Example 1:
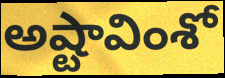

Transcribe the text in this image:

అష్టావింశో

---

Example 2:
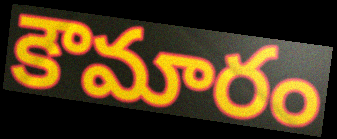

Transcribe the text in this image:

కౌమారం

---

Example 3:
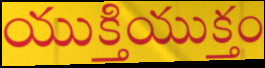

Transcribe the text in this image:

యుక్తియుక్తం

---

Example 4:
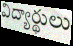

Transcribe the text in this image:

విద్యార్థులు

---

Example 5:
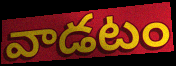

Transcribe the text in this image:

వాడటం